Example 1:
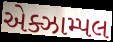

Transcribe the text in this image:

એક્ઝામ્પલ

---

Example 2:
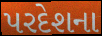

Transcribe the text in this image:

પરદેશના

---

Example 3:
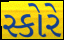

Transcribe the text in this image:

સ્કોરે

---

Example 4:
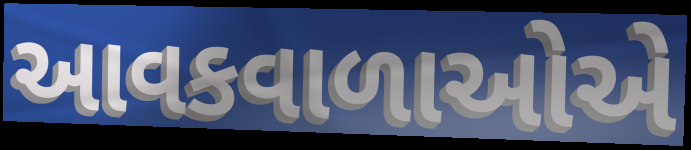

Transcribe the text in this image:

આવકવાળાઓએ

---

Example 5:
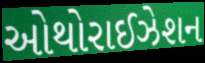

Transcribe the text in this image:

ઓથોરાઈઝેશન